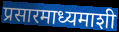
प्रसारमाध्यमाशी